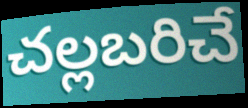
చల్లబరిచే